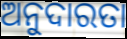
ଅନୁଦାରତା